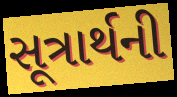
સૂત્રાર્થની